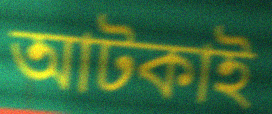
আটকাই